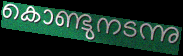
കൊണ്ടുനടന്നു